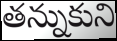
తన్నుకుని